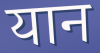
यान